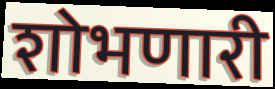
शोभणारी